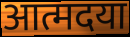
आत्मदया